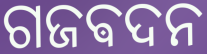
ଗଜଵଦନ